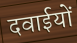
दवाईयों